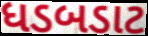
ધડબડાટ